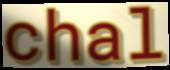
chal